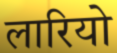
लारियो